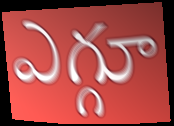
ఎగ్గూ